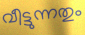
വീട്ടുന്നതും